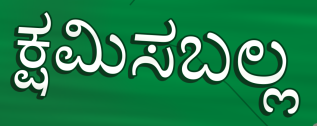
ಕ್ಷಮಿಸಬಲ್ಲ